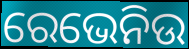
ରେଭେନିଉ